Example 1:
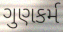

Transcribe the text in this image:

ગુણકર્મ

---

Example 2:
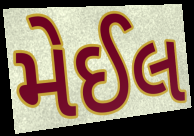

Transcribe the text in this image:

મેઈલ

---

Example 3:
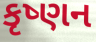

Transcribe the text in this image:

કૃષ્ણન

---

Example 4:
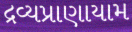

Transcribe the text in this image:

દ્રવ્યપ્રાણાયામ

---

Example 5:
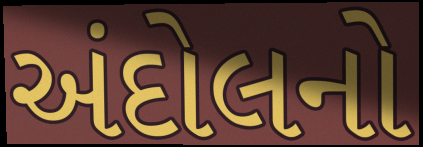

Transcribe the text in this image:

અંદોલનો